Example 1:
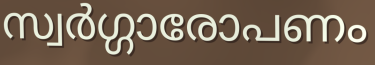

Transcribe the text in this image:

സ്വർഗ്ഗാരോപണം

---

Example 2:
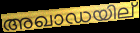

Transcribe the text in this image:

അഖാഡയില്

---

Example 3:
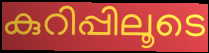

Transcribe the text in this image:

കുറിപ്പിലൂടെ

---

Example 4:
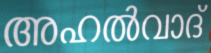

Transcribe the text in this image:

അഹൽവാദ്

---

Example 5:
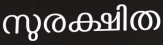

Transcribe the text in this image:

സുരക്ഷിത